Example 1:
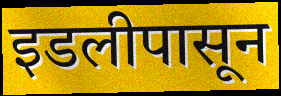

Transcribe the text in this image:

इडलीपासून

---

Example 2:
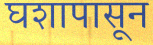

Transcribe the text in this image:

घशापासून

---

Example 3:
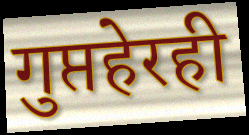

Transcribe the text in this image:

गुप्तहेरही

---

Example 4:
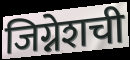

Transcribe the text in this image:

जिग्नेशची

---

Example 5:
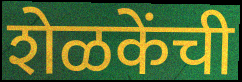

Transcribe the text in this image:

शेळकेंची